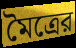
মৈত্রের